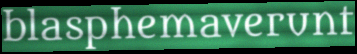
blasphemaverunt